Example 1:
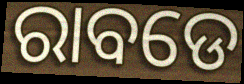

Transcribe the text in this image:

ରାବଡେ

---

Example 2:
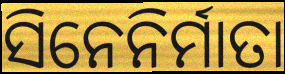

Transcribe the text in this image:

ସିନେନିର୍ମାତା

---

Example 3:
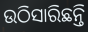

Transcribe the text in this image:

ଉଠିସାରିଛନ୍ତି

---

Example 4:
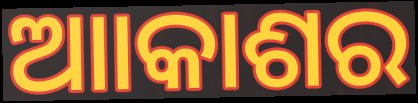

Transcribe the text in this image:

ଆାକାଶର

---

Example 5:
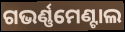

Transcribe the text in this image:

ଗଭର୍ଣ୍ଣମେଣ୍ଟାଲ